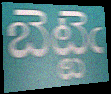
బెట్టెఁ